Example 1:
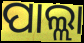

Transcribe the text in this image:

ପାଲ୍ଲା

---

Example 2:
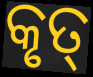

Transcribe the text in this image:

କୃତ୍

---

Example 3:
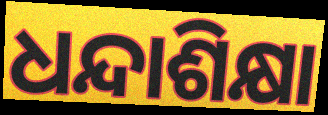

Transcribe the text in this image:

ଧନ୍ଦାଶିକ୍ଷା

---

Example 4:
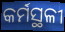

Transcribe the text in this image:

କର୍ମସ୍ଥଳୀ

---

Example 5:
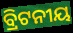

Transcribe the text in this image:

ବ୍ରିଟନୀୟ